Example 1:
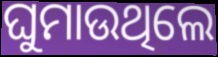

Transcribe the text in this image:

ଘୁମାଉଥିଲେ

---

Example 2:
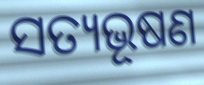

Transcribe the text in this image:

ସତ୍ୟଭୂଷଣ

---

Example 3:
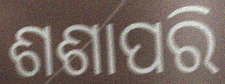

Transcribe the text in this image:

ଶଶାପରି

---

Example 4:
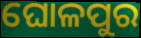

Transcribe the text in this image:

ଘୋଳପୁର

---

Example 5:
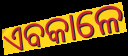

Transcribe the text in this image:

ଏବକାଳେ